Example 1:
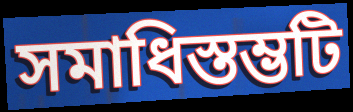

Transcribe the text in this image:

সমাধিস্তম্ভটি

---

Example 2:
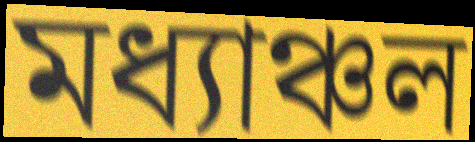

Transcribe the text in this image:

মধ্যাঞ্চল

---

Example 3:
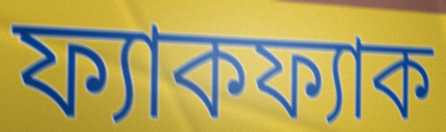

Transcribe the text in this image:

ফ্যাকফ্যাক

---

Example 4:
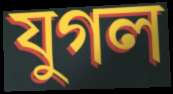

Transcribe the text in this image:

যুগল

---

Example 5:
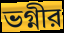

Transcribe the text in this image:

ভগ্নীর